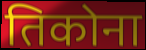
तिकोना